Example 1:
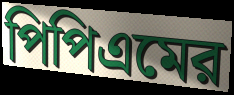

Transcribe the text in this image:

পিপিএমের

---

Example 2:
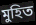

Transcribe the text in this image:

মুহিত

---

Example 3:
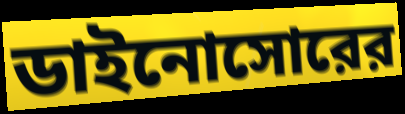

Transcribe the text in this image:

ডাইনোসোরের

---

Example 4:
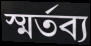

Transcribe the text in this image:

স্মর্তব্য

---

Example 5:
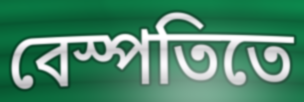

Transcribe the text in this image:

বেস্পতিতে